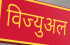
विज्युअल